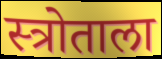
स्त्रोताला